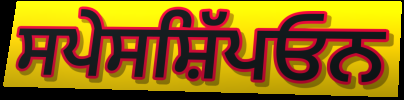
ਸਪੇਸਸ਼ਿੱਪਓਨ